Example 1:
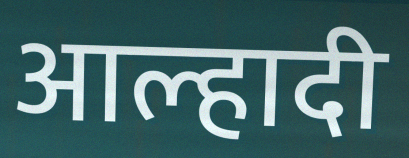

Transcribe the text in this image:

आल्हादी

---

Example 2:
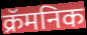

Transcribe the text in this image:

क्रॅमनिक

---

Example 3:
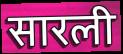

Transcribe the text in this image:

सारली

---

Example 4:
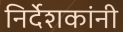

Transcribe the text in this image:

निर्देशकांनी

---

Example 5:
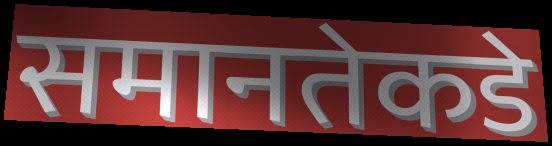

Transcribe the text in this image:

समानतेकडे